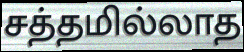
சத்தமில்லாத